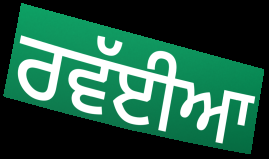
ਰਵੱਈਆ